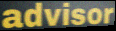
advisor